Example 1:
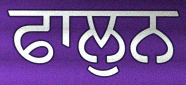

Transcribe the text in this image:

ਫਾਲੁਨ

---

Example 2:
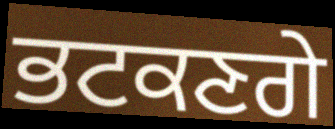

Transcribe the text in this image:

ਭਟਕਣਗੇ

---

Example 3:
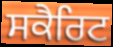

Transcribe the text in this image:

ਸਕੈਰਿਟ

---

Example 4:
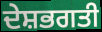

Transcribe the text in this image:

ਦੇਸ਼ਭਗਤੀ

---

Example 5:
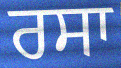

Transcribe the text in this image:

ਰਸਾ